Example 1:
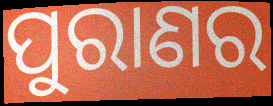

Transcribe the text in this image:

ପୁରାଣର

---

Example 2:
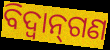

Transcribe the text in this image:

ବିଦ୍ୱାନ୍‌ଗଣ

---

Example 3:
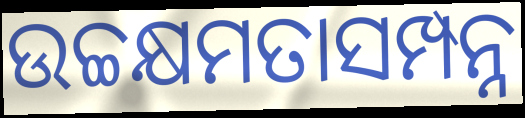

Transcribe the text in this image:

ଉଚ୍ଚକ୍ଷମତାସମ୍ପନ୍ନ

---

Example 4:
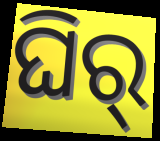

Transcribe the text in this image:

ଘିର୍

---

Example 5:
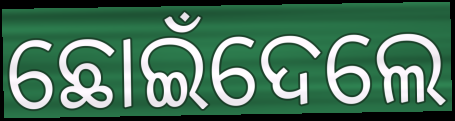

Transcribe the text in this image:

ଛୋଇଁଦେଲେ